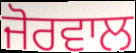
ਜੋਰਵਾਲ